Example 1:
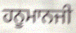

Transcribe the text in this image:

ਹਨੂਮਾਨਜੀ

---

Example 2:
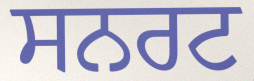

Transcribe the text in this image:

ਸਨਰਟ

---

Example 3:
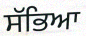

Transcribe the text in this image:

ਸੱਭਿਆ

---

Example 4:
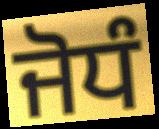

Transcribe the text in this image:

ਜੋਧੰ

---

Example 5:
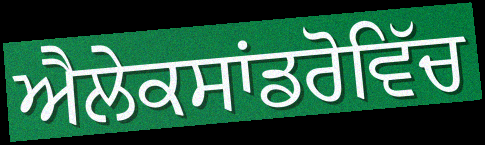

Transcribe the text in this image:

ਐਲੇਕਸਾਂਡਰੋਵਿੱਚ